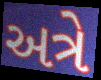
અત્રે